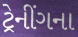
ટ્રેનીંગના